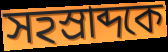
সহস্রাব্দকে